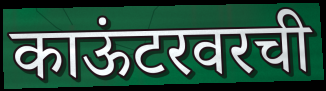
काऊंटरवरची